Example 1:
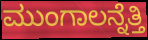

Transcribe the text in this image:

ಮುಂಗಾಲನ್ನೆತ್ತಿ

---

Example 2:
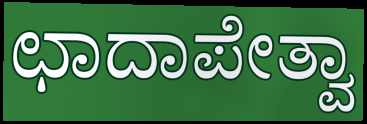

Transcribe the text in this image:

ಛಾದಾಪೇತ್ವಾ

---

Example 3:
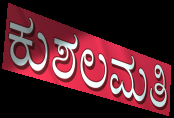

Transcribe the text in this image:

ಕುಶಲಮತಿ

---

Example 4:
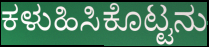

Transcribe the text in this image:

ಕಳುಹಿಸಿಕೊಟ್ಟನು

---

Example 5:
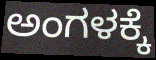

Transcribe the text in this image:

ಅಂಗಳಕ್ಕೆ